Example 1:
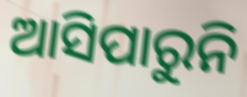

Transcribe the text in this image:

ଆସିପାରୁନି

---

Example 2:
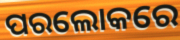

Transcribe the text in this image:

ପରଲୋକରେ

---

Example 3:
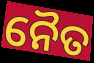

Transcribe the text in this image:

ନୈତ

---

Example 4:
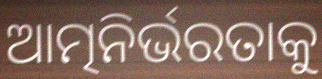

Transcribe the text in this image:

ଆତ୍ମନିର୍ଭରତାକୁ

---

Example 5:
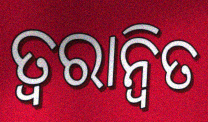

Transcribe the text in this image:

ତ୍ୱରାନ୍ଵିତ